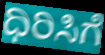
ಧಿರಿಸಿಗೆ